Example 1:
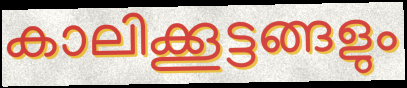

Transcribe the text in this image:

കാലിക്കൂട്ടങ്ങളും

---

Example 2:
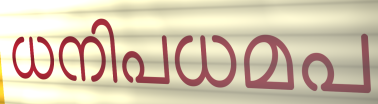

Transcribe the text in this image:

ധനിപധമപ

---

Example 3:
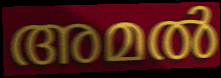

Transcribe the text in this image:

അമൽ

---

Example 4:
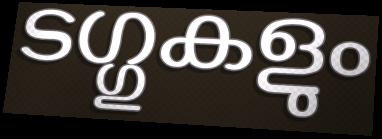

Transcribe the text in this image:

ടഗ്ഗുകളും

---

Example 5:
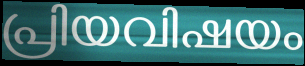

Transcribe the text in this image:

പ്രിയവിഷയം